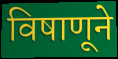
विषाणूने